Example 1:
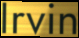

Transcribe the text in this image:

Irvin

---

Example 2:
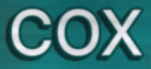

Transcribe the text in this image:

COX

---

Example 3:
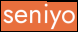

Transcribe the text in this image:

seniyo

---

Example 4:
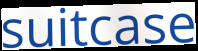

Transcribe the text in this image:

suitcase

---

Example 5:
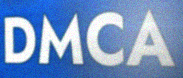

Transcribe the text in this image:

DMCA